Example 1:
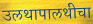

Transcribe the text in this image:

उलथापालथीचा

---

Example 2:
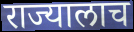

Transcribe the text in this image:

राज्यालाच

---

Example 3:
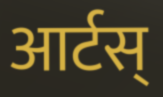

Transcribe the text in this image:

आर्टस्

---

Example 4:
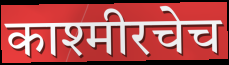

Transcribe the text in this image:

काश्मीरचेच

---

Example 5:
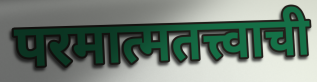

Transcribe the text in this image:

परमात्मतत्त्वाची